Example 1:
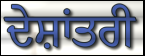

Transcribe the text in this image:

ਦੇਸ਼ਾਂਤਰੀ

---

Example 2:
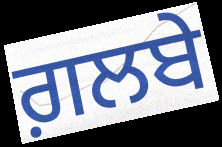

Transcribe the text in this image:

ਗ਼ਲਬੇ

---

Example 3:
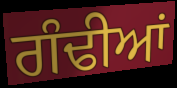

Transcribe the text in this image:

ਗੰਢੀਆਂ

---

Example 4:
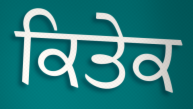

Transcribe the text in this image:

ਕਿਤੇਕ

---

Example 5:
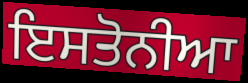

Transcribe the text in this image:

ਇਸਤੋਨੀਆ